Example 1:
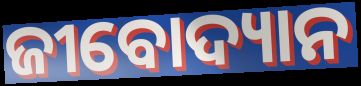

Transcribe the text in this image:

ଜୀବୋଦ୍ୟାନ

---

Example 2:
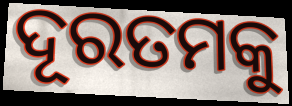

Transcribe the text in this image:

ଦୂରତମକୁ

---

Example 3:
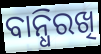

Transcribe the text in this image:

ବାନ୍ଧିରଖି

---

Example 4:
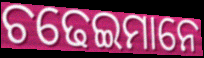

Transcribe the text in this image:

ଚଢେଇମାନେ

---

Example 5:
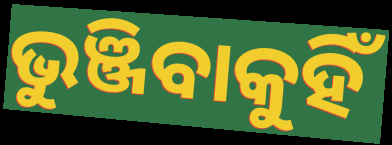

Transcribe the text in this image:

ଭୁଞ୍ଜିବାକୁହିଁ